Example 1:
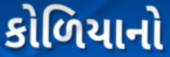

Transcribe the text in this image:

કોળિયાનો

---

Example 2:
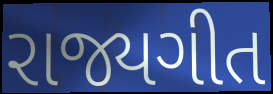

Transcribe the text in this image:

રાજ્યગીત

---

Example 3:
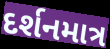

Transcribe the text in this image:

દર્શનમાત્ર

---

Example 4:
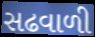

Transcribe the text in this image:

સઢવાળી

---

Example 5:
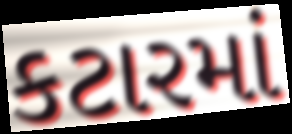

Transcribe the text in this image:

કટારમાં